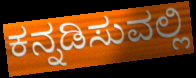
ಕನ್ನಡಿಸುವಲ್ಲಿ